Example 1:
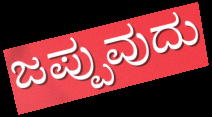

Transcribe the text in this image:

ಜಪ್ಪುವುದು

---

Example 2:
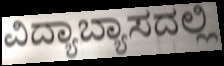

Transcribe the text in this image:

ವಿದ್ಯಾಬ್ಯಾಸದಲ್ಲಿ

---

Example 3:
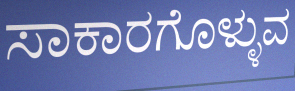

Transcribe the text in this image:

ಸಾಕಾರಗೊಳ್ಳುವ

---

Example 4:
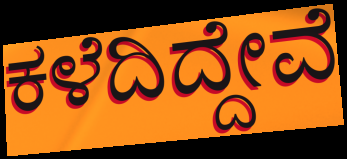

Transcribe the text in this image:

ಕಳೆದಿದ್ದೇವೆ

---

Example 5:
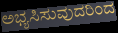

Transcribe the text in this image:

ಅಭ್ಯಸಿಸುವುದರಿಂದ